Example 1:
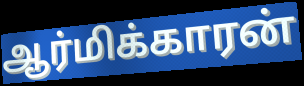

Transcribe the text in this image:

ஆர்மிக்காரன்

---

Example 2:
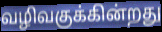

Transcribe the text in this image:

வழிவகுக்கின்றது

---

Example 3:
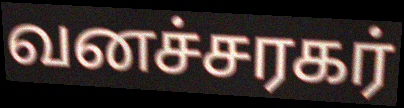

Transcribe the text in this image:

வனச்சரகர்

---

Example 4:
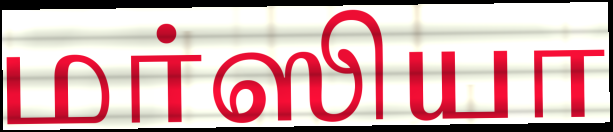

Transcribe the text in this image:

மர்ஸியா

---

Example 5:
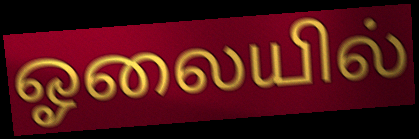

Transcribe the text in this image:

ஓலையில்